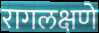
रागलक्षणे